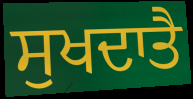
ਸੁਖਦਾਤੈ